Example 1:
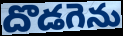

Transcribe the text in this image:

దొడగెను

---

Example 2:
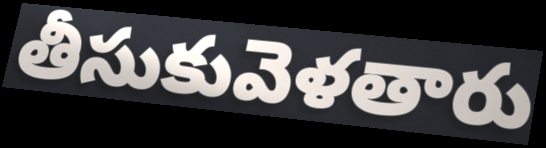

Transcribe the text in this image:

తీసుకువెళతారు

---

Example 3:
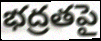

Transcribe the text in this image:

భద్రతపై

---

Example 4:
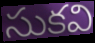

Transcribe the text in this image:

సుకవి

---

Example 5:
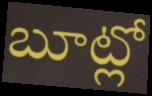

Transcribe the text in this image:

బూట్లో